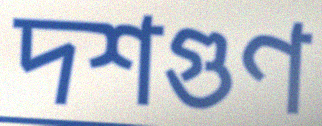
দশগুণ